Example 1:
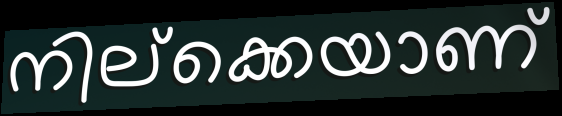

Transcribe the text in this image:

നില്ക്കെയാണ്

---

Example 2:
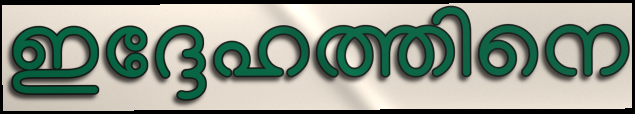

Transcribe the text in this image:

ഇദ്ദേഹത്തിനെ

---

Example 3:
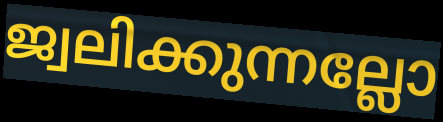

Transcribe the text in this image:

ജ്വലിക്കുന്നല്ലോ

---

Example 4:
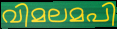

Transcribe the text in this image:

വിമലമപി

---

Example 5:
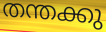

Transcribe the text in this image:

തന്തക്കു